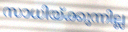
സാധിയ്ക്കുന്നില്ല